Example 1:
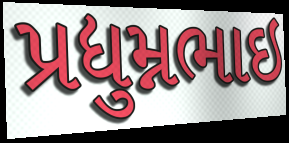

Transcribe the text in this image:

પ્રદ્યુમ્નભાઇ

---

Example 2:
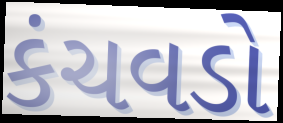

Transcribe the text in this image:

કંચવડો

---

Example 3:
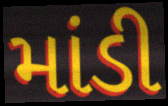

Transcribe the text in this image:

માંડી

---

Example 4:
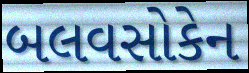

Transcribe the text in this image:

બલવસોકેન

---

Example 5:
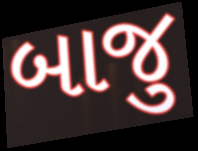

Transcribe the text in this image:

બાજુ